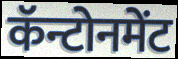
कॅन्टोनमेंट